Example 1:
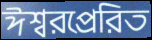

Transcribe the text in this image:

ঈশ্বরপ্রেরিত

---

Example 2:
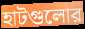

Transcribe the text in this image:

হাটগুলোর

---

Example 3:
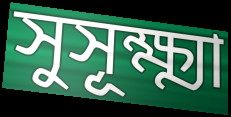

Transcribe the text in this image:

সুসূক্ষ্মা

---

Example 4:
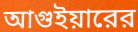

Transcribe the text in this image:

আগুইয়ারের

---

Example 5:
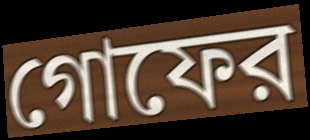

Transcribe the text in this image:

গোফের